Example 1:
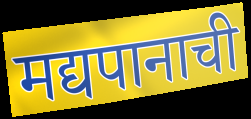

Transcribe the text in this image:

मद्यपानाची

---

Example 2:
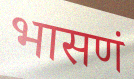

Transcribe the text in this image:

भासणं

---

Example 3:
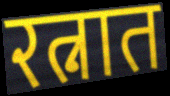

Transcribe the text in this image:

रत्नात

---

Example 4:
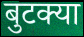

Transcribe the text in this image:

बुटक्या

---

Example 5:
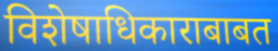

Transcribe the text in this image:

विशेषाधिकाराबाबत